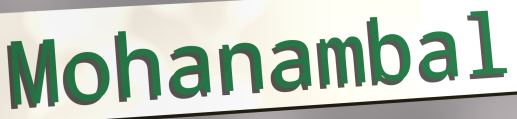
Mohanambal